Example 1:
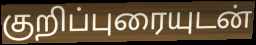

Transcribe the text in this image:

குறிப்புரையுடன்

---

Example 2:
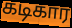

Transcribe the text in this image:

கடிகார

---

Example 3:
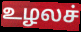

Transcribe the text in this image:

உழலச்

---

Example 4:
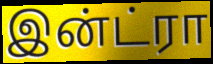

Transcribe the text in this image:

இன்ட்ரா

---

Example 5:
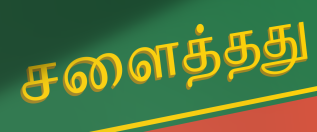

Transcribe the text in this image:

சளைத்தது